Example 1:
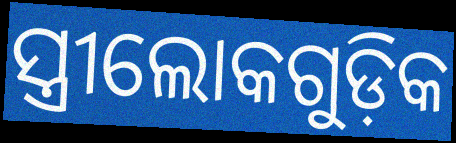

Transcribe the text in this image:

ସ୍ତ୍ରୀଲୋକଗୁଡ଼ିକ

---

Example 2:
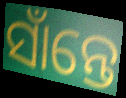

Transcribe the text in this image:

ସାଁନ୍ତେ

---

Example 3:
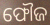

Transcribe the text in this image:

ଫୌଜ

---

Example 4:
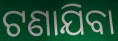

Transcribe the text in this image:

ଟଣାଯିବା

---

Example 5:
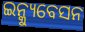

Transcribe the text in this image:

ଇନ୍କ୍ୟୁବେସନ